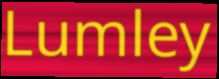
Lumley